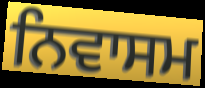
ਨਿਵਾਸਮ